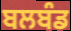
ਬਲਬੰਡ